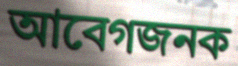
আবেগজনক